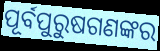
ପୂର୍ବପୁରୁଷଗଣଙ୍କର